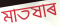
মাতষাৰ